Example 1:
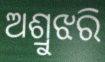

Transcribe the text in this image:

ଅଶ୍ରୁଝରି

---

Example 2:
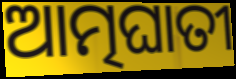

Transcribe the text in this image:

ଆତ୍ମଘାତୀ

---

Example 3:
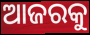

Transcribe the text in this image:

ଆଜରକୁ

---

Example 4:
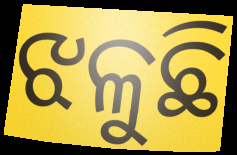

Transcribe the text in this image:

ଝଳୁଛି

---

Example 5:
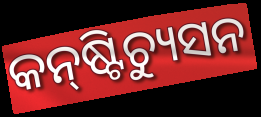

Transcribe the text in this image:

କନ୍‍ଷ୍ଟିଚ୍ୟୁସନ